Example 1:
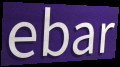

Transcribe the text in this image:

ebar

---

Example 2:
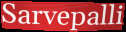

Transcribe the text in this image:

Sarvepalli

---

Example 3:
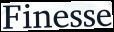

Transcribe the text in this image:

Finesse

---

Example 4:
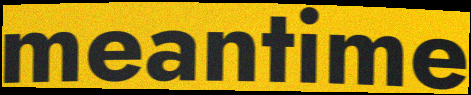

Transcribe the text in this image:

meantime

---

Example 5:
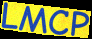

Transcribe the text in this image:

LMCP